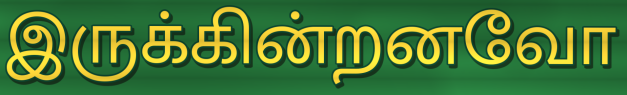
இருக்கின்றனவோ